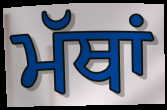
ਮੱਥਾਂ